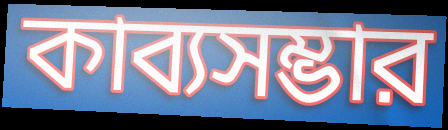
কাব্যসম্ভার